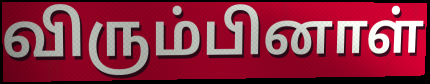
விரும்பினாள்